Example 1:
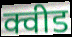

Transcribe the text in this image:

क्वीड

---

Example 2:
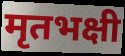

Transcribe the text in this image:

मृतभक्षी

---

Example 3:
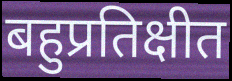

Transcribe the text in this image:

बहुप्रतिक्षीत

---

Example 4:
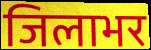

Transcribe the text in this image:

जिलाभर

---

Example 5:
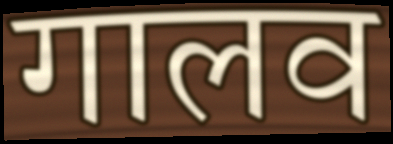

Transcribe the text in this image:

गालव